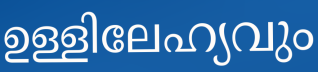
ഉള്ളിലേഹ്യവും